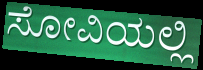
ಸೋವಿಯಲ್ಲಿ